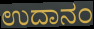
ಉದಾನಂ